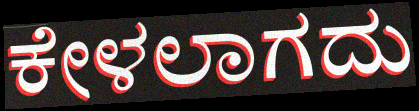
ಕೇಳಲಾಗದು